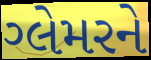
ગ્લેમરને